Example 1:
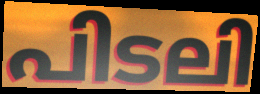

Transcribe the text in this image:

പിടലി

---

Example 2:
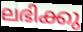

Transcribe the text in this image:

ലഭിക്കു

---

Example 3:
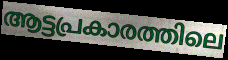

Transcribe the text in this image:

ആട്ടപ്രകാരത്തിലെ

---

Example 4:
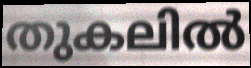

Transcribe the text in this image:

തുകലിൽ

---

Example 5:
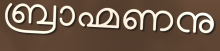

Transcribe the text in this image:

ബ്രാഹ്മണനു